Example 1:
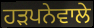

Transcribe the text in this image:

ਹੜਪਨੇਵਾਲੇ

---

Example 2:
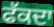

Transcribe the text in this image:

ਫੱਕਦਾ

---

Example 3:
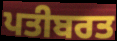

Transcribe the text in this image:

ਪਤੀਬਰਤ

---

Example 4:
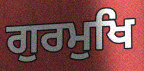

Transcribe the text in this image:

ਗੁਰਮੁਖਿ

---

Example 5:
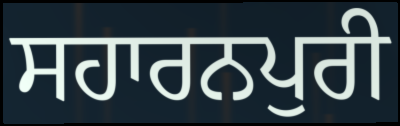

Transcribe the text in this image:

ਸਹਾਰਨਪੁਰੀ